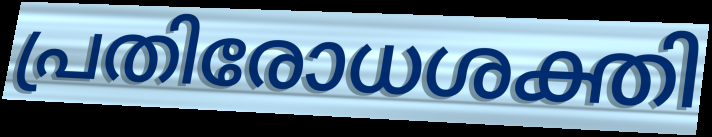
പ്രതിരോധശക്തി